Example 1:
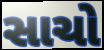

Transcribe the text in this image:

સાચો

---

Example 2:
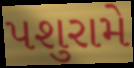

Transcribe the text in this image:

પશુરામે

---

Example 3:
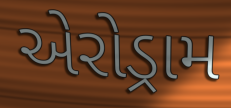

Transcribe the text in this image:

એરોડ્રામ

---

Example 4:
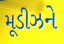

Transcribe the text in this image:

મૂડીઝને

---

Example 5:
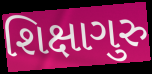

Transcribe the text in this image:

શિક્ષાગુરુ